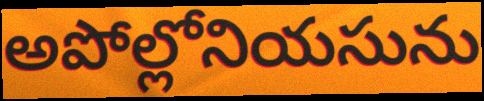
అపోల్లోనియసును